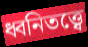
ধ্বনিতত্ত্বে